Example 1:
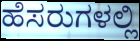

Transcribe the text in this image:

ಹೆಸರುಗಳಲ್ಲಿ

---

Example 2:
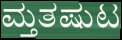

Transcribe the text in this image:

ಮ್ತತಷುಟ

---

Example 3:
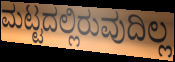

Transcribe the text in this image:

ಮಟ್ಟದಲ್ಲಿರುವುದಿಲ್ಲ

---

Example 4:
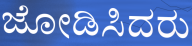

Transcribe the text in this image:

ಜೋಡಿಸಿದರು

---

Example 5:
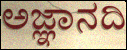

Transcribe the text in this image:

ಅಜ್ಞಾನದಿ